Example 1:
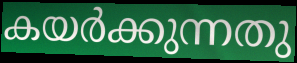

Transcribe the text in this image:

കയർക്കുന്നതു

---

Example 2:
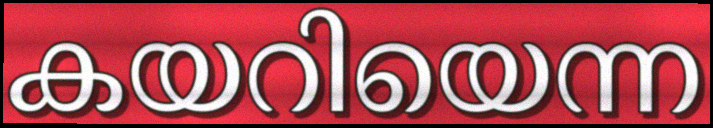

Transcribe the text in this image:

കയറിയെന്ന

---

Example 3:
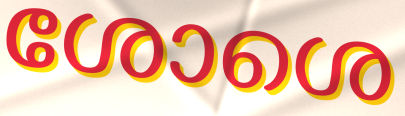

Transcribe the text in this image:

ശോശെ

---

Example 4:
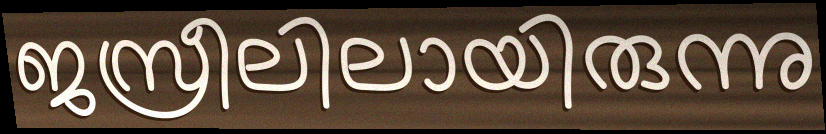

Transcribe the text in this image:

ജസ്രീലിലായിരുന്നു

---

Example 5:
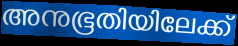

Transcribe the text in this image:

അനുഭൂതിയിലേക്ക്